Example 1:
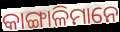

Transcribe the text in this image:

କାଙ୍ଗାଳିମାନେ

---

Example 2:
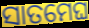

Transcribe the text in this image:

ସାତମେଘ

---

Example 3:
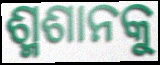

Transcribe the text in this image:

ଶ୍ମଶାନକୁ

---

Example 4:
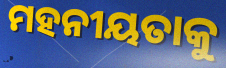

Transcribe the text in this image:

ମହନୀୟତାକୁ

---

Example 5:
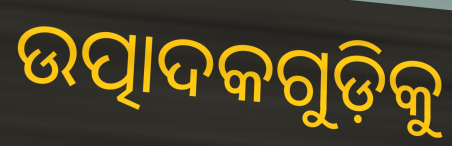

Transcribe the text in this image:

ଉତ୍ପାଦକଗୁଡ଼ିକୁ